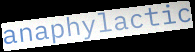
anaphylactic